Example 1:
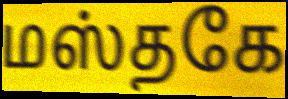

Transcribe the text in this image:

மஸ்தகே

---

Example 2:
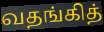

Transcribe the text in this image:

வதங்கித்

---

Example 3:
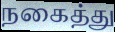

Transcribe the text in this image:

நகைத்து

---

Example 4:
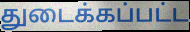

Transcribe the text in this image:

துடைக்கப்பட்ட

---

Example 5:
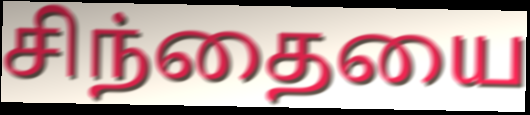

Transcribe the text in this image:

சிந்தையை